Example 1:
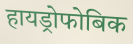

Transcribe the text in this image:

हायड्रोफोबिक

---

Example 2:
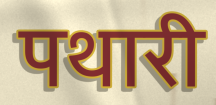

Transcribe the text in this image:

पथारी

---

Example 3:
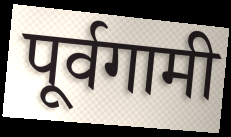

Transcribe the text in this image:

पूर्वगामी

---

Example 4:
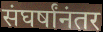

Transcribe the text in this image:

संघर्षांनंतर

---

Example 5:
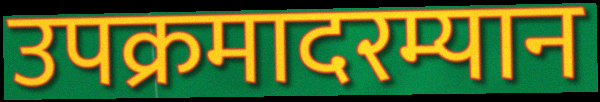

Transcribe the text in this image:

उपक्रमादरम्यान